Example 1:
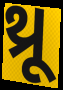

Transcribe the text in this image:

થ્રૂ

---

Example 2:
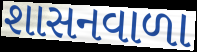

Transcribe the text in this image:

શાસનવાળા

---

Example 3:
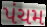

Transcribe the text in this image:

પંચમ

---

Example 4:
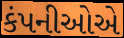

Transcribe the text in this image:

કંપનીઓએ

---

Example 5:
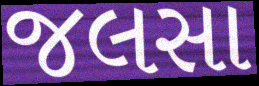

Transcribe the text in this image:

જલસા